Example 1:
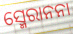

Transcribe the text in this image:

ସ୍ମେରାନନା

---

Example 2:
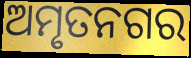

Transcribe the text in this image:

ଅମୃତନଗର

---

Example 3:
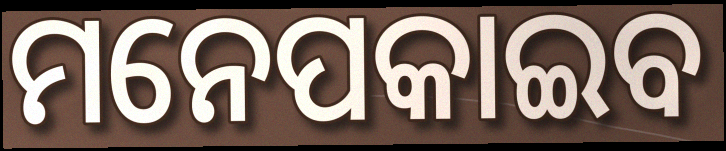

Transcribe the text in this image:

ମନେପକାଇବ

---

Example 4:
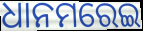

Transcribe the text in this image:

ଧାନମରେଇ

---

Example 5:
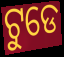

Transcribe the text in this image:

ଟୁଡେ